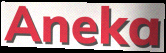
Aneka